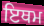
ਇਥਮ